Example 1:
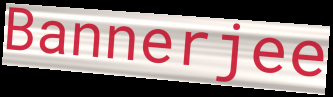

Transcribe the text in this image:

Bannerjee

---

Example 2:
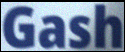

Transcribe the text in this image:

Gash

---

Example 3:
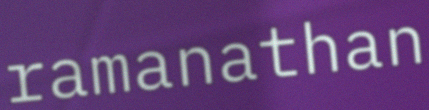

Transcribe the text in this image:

ramanathan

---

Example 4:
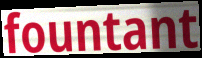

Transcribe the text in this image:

fountant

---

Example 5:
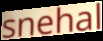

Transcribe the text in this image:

snehal